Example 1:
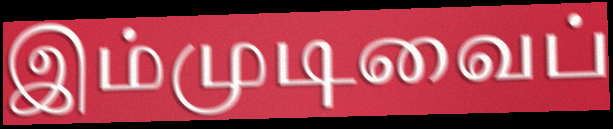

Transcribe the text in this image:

இம்முடிவைப்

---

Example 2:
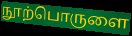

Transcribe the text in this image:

நூற்பொருளை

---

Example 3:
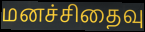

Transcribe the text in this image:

மனச்சிதைவு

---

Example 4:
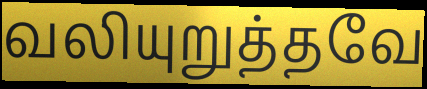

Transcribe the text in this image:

வலியுறுத்தவே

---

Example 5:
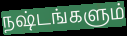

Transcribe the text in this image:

நஷ்டங்களும்